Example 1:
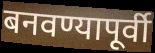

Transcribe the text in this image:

बनवण्यापूर्वी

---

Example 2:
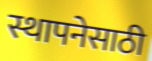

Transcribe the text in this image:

स्थापनेसाठी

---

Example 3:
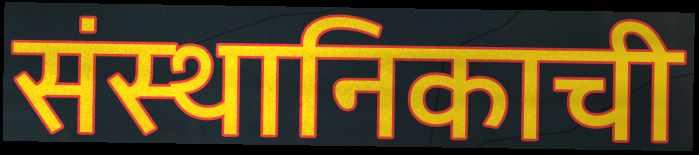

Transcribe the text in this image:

संस्थानिकाची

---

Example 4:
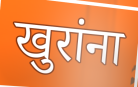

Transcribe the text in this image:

खुरांना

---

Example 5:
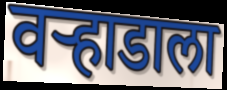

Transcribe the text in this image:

वऱ्हाडाला